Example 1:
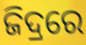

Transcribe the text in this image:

ଜିଦ୍ରରେ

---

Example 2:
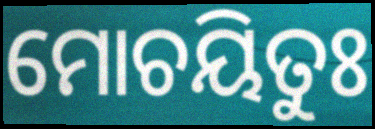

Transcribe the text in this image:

ମୋଚୟିତୁଃ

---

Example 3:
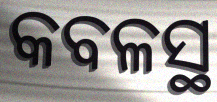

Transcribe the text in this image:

କବଳସ୍ଥ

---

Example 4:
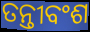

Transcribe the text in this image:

ତନ୍ତୀବଂଶ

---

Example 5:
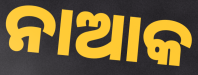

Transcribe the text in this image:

ନାଆକ